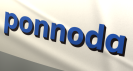
ponnoda